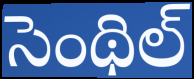
సెంథిల్